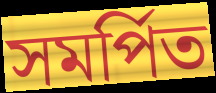
সমর্পিত